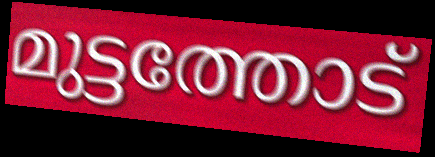
മുട്ടത്തോട്